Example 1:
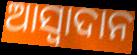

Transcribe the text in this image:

ଆସ୍ୱାଦାନ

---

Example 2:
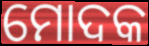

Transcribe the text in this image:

ମୋଦକ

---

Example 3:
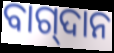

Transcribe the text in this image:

ବାଗ୍‍ଦାନ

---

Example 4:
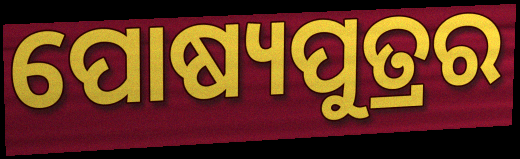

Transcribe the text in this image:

ପୋଷ୍ୟପୁତ୍ରର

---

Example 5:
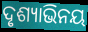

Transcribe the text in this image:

ଦୃଶ୍ୟାଭିନୟ